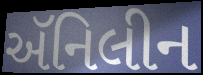
ઍનિલીન